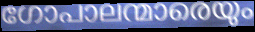
ഗോപാലന്മാരെയും